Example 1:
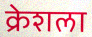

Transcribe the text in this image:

क्रेशला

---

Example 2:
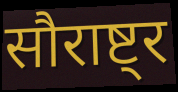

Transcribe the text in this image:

सौराष्ट्र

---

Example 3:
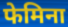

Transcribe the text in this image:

फेमिना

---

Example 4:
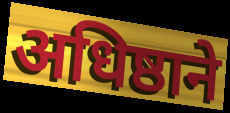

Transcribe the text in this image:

अधिष्ठाने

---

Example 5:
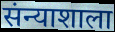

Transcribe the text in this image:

संन्याशाला